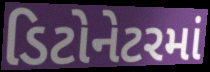
ડિટોનેટરમાં